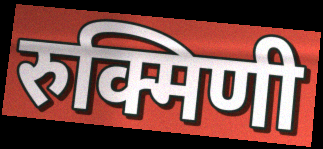
रुक्मिणी